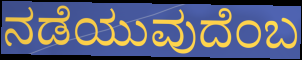
ನಡೆಯುವುದೆಂಬ